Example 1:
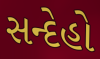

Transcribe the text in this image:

સન્દેહો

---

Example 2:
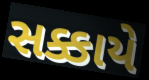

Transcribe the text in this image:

સક્કાયે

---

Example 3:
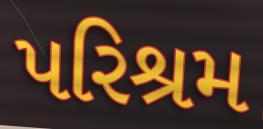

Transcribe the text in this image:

પરિશ્રમ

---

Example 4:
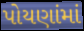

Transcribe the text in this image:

પોયણાંમાં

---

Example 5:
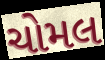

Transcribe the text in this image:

ચોમલ